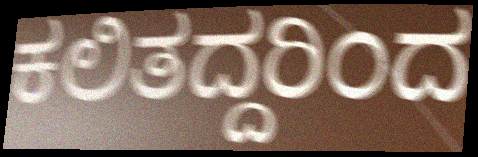
ಕಲಿತದ್ದರಿಂದ